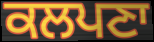
ਕਲਪਣਾ